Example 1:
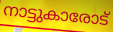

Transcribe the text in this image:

നാട്ടുകാരോട്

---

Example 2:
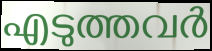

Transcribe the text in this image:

എടുത്തവർ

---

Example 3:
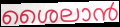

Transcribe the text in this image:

ശൈലാൻ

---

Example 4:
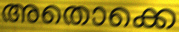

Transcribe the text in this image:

അതൊക്കെ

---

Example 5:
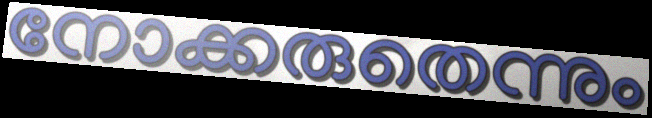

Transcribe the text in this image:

നോക്കരുതെന്നും